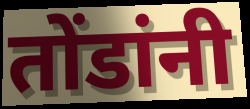
तोंडांनी